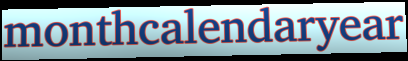
monthcalendaryear